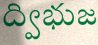
ద్విభుజ